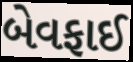
બેવફાઈ